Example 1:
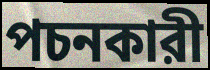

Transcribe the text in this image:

পচনকারী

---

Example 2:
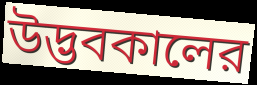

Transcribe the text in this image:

উদ্ভবকালের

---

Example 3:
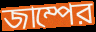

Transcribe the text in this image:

জাম্পের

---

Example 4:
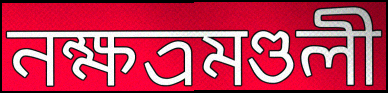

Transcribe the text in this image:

নক্ষত্রমণ্ডলী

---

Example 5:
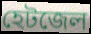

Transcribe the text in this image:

হেটজেল